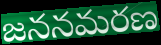
జననమరణ